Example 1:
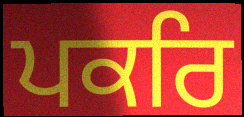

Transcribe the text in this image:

ਪਕਰਿ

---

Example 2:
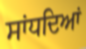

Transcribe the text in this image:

ਸਾਂਧਦਿਆਂ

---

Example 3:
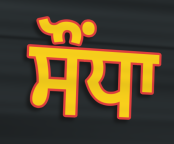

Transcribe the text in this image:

ਸੌਂਧਾ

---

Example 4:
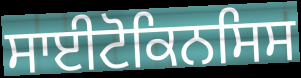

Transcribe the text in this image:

ਸਾਈਟੋਕਿਨਸਿਸ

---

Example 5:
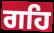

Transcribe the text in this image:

ਗਹਿ